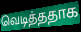
வெடித்ததாக